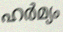
ഹർമ്യം